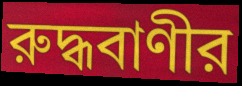
রুদ্ধবাণীর